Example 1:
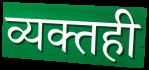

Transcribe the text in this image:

व्यक्तही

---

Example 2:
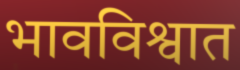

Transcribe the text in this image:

भावविश्वात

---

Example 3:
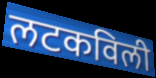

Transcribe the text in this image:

लटकविली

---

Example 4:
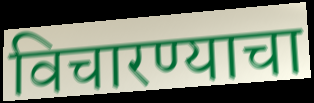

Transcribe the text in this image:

विचारण्याचा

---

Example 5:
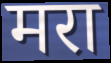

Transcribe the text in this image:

मरा